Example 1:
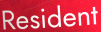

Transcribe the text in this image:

Resident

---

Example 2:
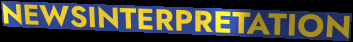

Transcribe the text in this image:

NEWSINTERPRETATION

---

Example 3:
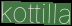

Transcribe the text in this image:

kottilla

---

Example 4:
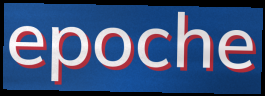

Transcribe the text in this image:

epoche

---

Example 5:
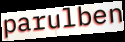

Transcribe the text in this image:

parulben